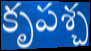
కృపశ్చ